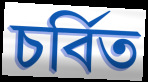
চৰ্বিত